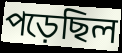
পড়েছিল